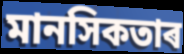
মানসিকতাৰ